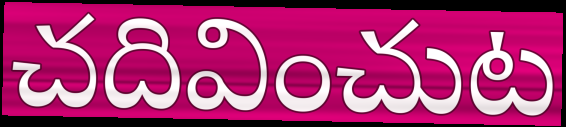
చదివించుట